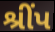
શ્રીંપ